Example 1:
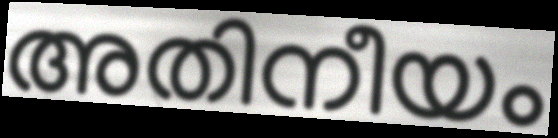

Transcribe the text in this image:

അതിനീയം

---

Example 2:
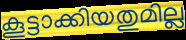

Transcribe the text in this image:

കൂട്ടാക്കിയതുമില്ല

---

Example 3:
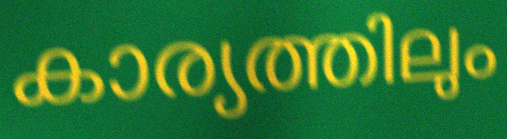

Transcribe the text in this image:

കാര്യത്തിലും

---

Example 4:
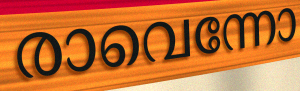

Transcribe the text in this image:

രാവെന്നോ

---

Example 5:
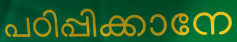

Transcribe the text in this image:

പഠിപ്പിക്കാനേ